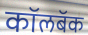
कॉलबॅक